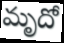
మృదో